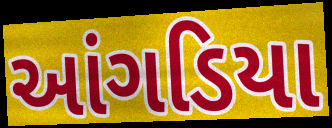
આંગડિયા